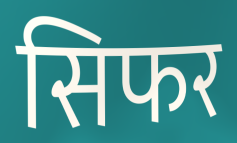
सिफर